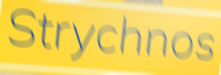
Strychnos